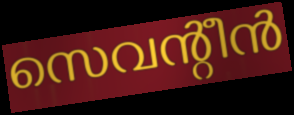
സെവന്റീൻ